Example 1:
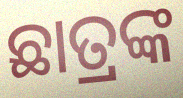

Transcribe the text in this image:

ଛାତ୍ରଙ୍କ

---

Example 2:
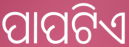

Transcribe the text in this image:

ପାପଟିଏ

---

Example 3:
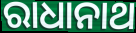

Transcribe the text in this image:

ରାଧାନାଥ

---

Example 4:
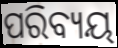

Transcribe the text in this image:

ପରିବ୍ୟୟ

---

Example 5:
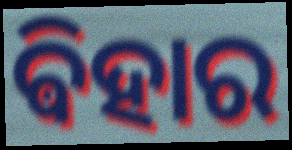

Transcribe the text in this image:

ଵିହାର